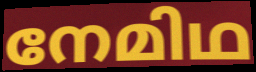
നേമിഥ